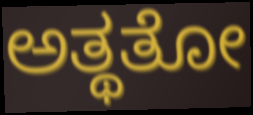
ಅತ್ಥತೋ